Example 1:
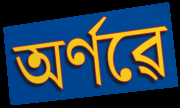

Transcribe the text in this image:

অৰ্ণৱে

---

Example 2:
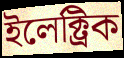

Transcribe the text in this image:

ইলেক্ট্ৰিক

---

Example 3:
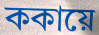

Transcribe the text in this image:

ককায়ে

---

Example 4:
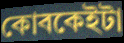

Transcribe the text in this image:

কোবকেইটা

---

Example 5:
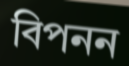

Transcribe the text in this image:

বিপনন